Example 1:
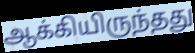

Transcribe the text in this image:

ஆக்கியிருந்தது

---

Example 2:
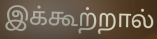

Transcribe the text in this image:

இக்கூற்றால்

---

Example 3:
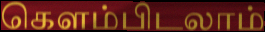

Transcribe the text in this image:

கெளம்பிடலாம்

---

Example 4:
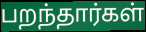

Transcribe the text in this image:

பறந்தார்கள்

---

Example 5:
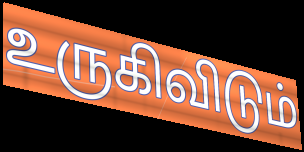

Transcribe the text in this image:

உருகிவிடும்